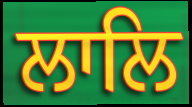
ਲਾਲਿ